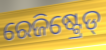
ରେଜିଷ୍ଟ୍ରେଡ୍